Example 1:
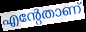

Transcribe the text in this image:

എന്റേതാണ്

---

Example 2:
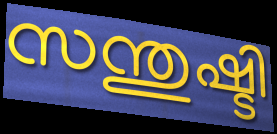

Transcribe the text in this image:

സന്തുഷ്ടി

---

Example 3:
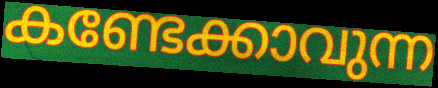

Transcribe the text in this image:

കണ്ടേക്കാവുന്ന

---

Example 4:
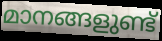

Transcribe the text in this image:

മാനങ്ങളുണ്ട്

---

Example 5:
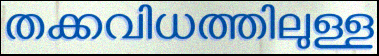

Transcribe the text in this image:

തക്കവിധത്തിലുള്ള